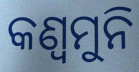
କଣ୍ୱମୁନି